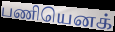
பணியெனக்